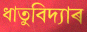
ধাতুবিদ্যাৰ